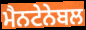
ਮੈਨਟੇਨੇਬਲ